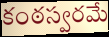
కంఠస్వరమే